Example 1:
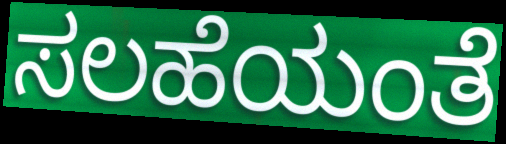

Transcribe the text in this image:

ಸಲಹೆಯಂತೆ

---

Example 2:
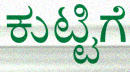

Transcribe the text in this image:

ಕುಟ್ಟಿಗೆ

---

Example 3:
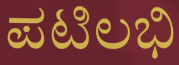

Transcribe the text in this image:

ಪಟಿಲಭಿ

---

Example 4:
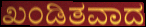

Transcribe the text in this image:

ಖಂಡಿತವಾದ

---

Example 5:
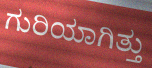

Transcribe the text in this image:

ಗುರಿಯಾಗಿತ್ತು